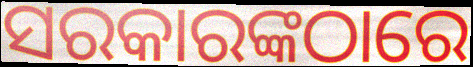
ସରକାରଙ୍କଠାରେ